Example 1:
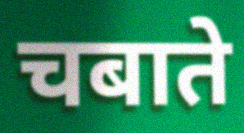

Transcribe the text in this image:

चबाते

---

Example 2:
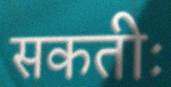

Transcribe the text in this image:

सकतीः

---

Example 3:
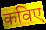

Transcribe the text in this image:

कविए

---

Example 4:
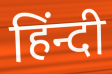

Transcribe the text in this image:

हिंन्दी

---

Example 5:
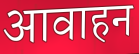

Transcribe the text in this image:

आवाहन